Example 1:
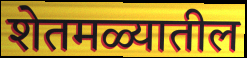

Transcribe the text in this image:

शेतमळ्यातील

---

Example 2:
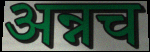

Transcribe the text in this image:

अन्नच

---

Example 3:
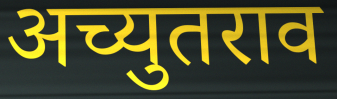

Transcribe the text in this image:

अच्युतराव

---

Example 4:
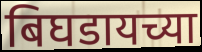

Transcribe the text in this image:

बिघडायच्या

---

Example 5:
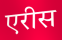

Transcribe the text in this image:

एरीस